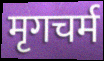
मृगचर्म